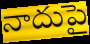
నాదుపై